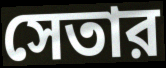
সেতার